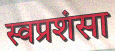
स्वप्रशंसा